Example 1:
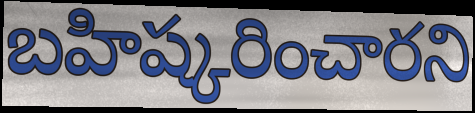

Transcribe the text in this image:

బహిష్కరించారని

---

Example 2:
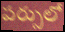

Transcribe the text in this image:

పర్సులో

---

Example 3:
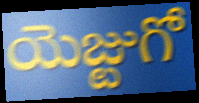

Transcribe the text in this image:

యెజ్టుగో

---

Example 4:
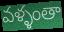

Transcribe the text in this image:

వళ్ళంతా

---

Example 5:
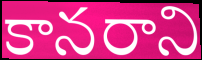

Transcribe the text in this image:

కానరాని